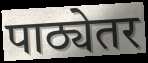
पाठ्येतर